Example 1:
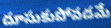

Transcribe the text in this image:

దూసుకుపోవడమే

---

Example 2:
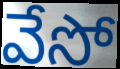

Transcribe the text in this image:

వేసో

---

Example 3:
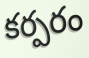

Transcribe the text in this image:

కర్పరం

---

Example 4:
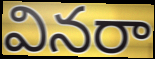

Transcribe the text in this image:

వినరా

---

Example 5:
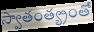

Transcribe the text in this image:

స్వాతంత్య్రంతో